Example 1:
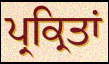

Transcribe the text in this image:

ਪ੍ਰਕ੍ਰਿਤਾਂ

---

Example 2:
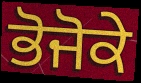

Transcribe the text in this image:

ਭੋਜੋਕੇ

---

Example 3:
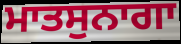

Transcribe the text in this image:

ਮਾਤਸੁਨਾਗਾ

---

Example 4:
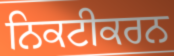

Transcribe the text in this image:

ਨਿਕਟੀਕਰਨ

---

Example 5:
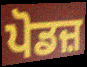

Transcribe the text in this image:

ਪੋਡਜ਼